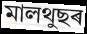
মালথুছৰ